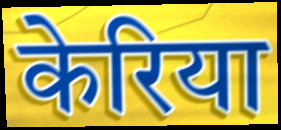
केरिया